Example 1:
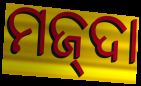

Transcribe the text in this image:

ମଜ୍‌ଦା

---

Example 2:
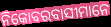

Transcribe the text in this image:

ନିକୋବରବାସୀମାନେ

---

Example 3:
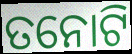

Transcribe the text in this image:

ତନୋଟି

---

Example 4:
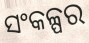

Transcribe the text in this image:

ସଂକଳ୍ପର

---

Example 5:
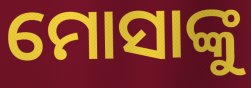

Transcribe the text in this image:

ମୋସାଙ୍କୁ